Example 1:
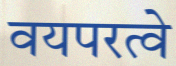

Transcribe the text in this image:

वयपरत्वे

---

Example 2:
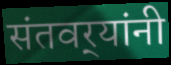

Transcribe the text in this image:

संतवर्यांनी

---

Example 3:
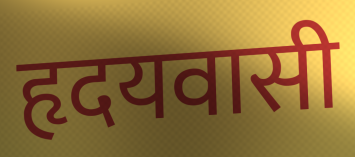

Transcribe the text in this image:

हृदयवासी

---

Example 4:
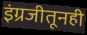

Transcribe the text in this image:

इंग्रजीतूनही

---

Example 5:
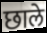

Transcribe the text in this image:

छाले